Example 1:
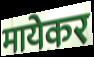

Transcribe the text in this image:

मायेकर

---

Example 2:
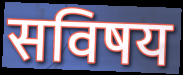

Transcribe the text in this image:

सविषय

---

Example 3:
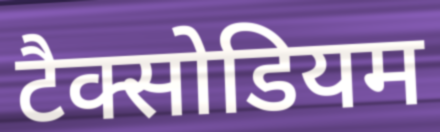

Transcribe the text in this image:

टैक्सोडियम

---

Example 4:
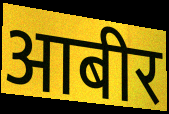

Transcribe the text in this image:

आबीर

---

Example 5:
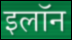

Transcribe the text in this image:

इलॉन